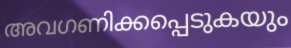
അവഗണിക്കപ്പെടുകയും